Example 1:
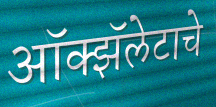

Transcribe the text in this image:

ऑक्झॅलेटाचे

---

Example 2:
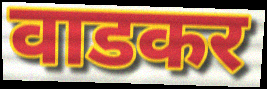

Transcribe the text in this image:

वाडकर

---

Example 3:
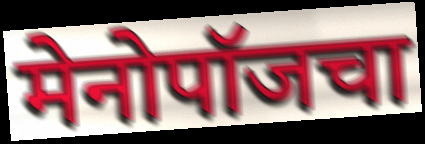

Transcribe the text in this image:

मेनोपॉजचा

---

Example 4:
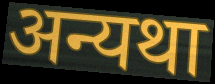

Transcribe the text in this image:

अन्यथा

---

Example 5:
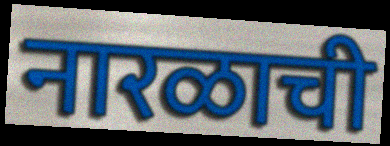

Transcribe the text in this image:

नारळाची